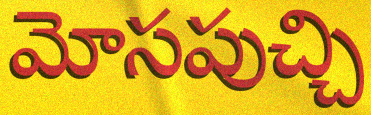
మోసపుచ్చి